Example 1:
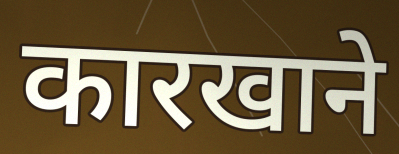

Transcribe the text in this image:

कारखाने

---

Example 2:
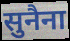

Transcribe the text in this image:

सुनैना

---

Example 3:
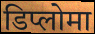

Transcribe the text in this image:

डिप्‍लोमा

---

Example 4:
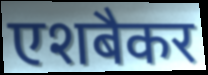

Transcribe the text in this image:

एशबैकर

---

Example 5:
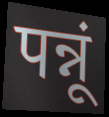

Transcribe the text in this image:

पन्नूं